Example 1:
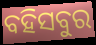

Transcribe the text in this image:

ବହିସବୁର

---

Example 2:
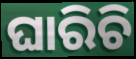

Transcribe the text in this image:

ଘାରିଚି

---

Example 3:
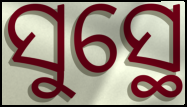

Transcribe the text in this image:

ସୁସ୍ଥେ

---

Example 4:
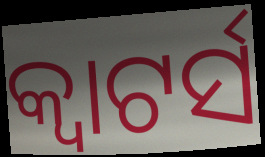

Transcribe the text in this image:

କ୍ଵାଟର୍ସ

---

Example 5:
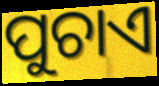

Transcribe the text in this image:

ପୁଚାଏ